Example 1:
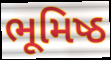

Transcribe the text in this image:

ભૂમિષ્ઠ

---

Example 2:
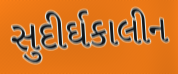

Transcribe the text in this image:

સુદીર્ઘકાલીન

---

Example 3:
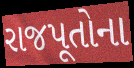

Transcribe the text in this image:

રાજપૂતોના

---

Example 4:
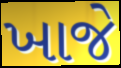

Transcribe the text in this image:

ખાજે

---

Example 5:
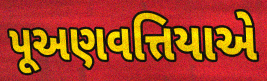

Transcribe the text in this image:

પૂઅણવત્તિયાએ